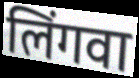
लिंगवा